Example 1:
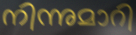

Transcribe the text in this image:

നിന്നുമാറി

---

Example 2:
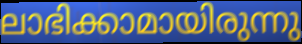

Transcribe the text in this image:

ലാഭിക്കാമായിരുന്നു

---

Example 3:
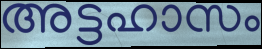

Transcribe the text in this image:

അട്ടഹാസം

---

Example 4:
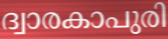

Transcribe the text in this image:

ദ്വാരകാപുരി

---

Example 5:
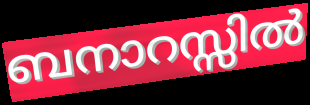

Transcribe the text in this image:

ബനാറസ്സിൽ